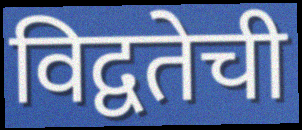
विद्वतेची